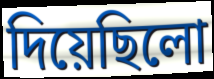
দিয়েছিলো